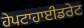
ਹੇਪਟਾਹਾਈਡਰੇਟ